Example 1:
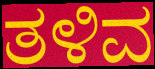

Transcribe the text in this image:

ತಳಿವ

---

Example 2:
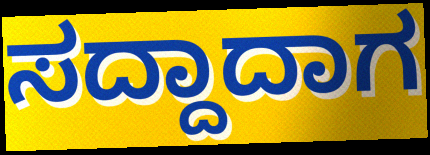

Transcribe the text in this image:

ಸದ್ದಾದಾಗ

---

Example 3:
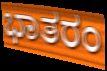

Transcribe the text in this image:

ಭಾತರಂ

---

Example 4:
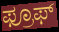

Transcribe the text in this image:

ಫ್ರೂಫ್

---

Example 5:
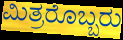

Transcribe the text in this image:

ಮಿತ್ರರೊಬ್ಬರು